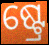
ଷ୍ଟ୍ରେ